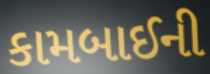
કામબાઈની